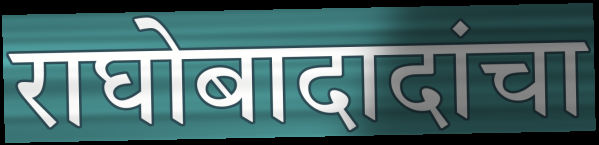
राघोबादादांचा